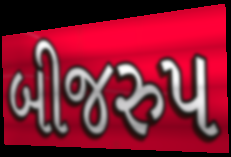
બીજરુપ